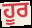
ਹੂਰ